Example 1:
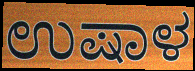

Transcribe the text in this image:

ಉಷಾಳ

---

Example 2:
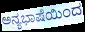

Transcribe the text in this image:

ಅನ್ಯಭಾಷೆಯಿಂದ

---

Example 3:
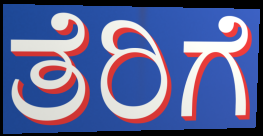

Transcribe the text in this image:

ತೆರಿಗೆ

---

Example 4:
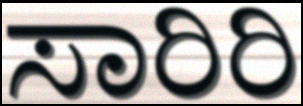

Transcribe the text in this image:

ಸಾರಿರಿ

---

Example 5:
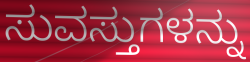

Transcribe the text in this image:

ಸುವಸ್ತುಗಳನ್ನು